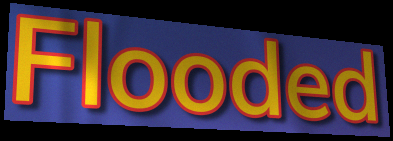
Flooded